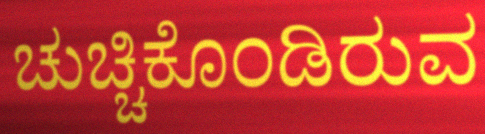
ಚುಚ್ಚಿಕೊಂಡಿರುವ